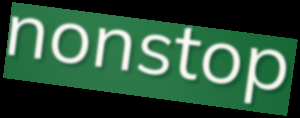
nonstop